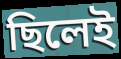
ছিলেই